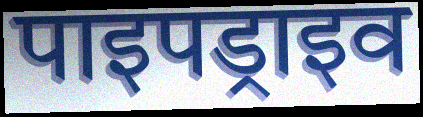
पाइपड्राइव